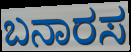
ಬನಾರಸ